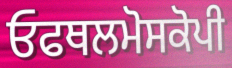
ਓਫਥਲਮੋਸਕੋਪੀ